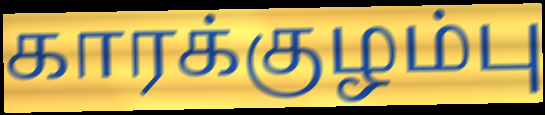
காரக்குழம்பு